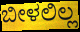
ಬೀಳಲಿಲ್ಲ